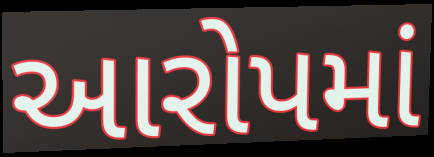
આરોપમાં